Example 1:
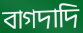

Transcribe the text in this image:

বাগদাদি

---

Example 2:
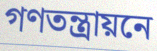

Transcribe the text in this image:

গণতন্ত্রায়নে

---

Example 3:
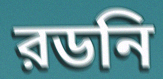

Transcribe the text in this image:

রডনি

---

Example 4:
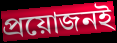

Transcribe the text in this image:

প্রয়োজনই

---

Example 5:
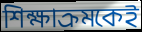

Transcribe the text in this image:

শিক্ষাক্রমকেই